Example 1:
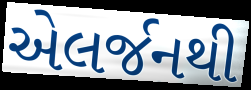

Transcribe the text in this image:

એલર્જનથી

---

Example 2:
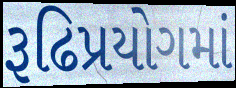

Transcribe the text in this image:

રૂઢિપ્રયોગમાં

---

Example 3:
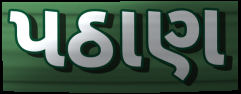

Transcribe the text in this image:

પઠાણ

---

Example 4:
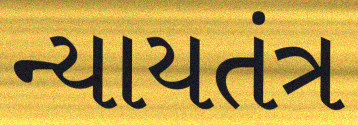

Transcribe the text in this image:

ન્યાયતંત્ર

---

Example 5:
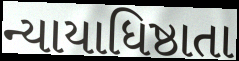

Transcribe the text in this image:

ન્યાયાધિષ્ઠાતા